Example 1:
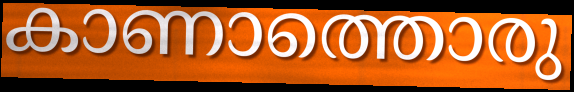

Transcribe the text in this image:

കാണാത്തൊരു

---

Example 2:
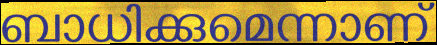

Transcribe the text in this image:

ബാധിക്കുമെന്നാണ്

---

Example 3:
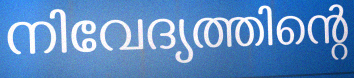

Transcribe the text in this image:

നിവേദ്യത്തിന്റെ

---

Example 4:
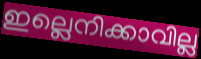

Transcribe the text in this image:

ഇല്ലെനിക്കാവില്ല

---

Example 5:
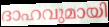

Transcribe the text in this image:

ദാഹവുമായി